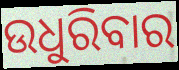
ଉଧୁରିବାର